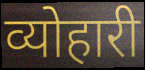
व्योहारी